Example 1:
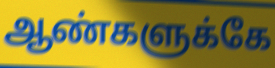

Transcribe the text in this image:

ஆண்களுக்கே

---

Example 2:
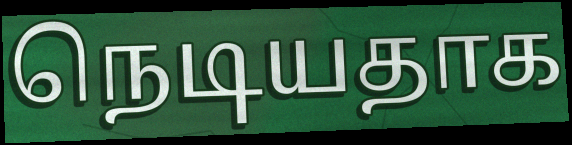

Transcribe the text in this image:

நெடியதாக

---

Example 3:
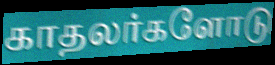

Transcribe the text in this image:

காதலர்களோடு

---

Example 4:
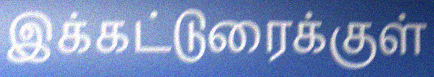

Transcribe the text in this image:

இக்கட்டுரைக்குள்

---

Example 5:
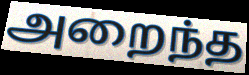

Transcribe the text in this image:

அறைந்த